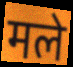
मले